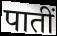
पातीं